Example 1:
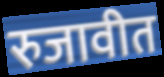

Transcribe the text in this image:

रुजावीत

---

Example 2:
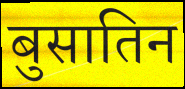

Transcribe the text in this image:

बुसातिन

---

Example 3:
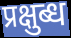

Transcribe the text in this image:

प्रक्षुब्ध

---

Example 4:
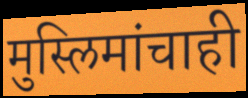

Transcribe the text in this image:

मुस्लिमांचाही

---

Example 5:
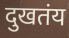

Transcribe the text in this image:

दुखतंय